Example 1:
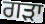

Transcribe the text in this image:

ਗੜਾ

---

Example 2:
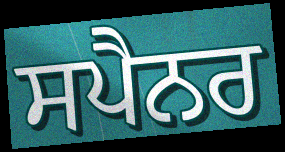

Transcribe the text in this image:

ਸਪੈਨਰ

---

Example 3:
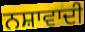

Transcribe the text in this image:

ਨਸ਼ਾਵਾਦੀ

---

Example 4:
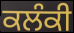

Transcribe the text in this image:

ਕਲੰਕੀ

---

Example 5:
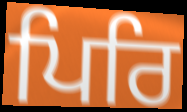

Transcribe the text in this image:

ਪਿਰਿ